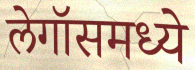
लेगॉसमध्ये